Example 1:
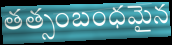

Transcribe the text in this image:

తత్సంబంధమైన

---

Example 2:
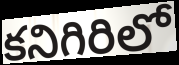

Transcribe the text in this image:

కనిగిరిలో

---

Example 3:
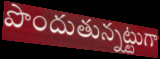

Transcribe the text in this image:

పొందుతున్నట్టుగా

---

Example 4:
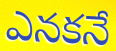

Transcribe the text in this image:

ఎనకనే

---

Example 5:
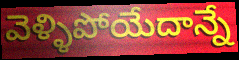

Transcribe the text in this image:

వెళ్ళిపోయేదాన్నే